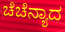
ಚೆಚೆನ್ಯಾದ